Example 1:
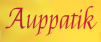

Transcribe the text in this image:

Auppatik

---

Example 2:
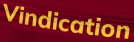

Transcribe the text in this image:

Vindication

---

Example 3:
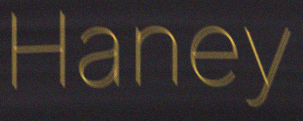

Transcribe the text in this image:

Haney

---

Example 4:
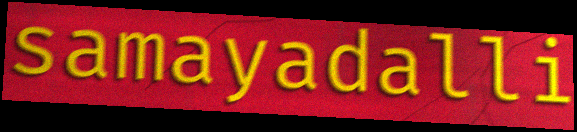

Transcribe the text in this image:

samayadalli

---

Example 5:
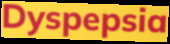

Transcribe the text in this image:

Dyspepsia